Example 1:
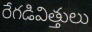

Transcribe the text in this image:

రేగడివిత్తులు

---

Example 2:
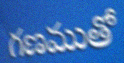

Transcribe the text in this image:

గణముతో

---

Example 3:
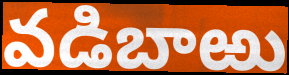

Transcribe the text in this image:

వడిబాఱు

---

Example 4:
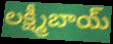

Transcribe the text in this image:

లక్ష్మీబాయ్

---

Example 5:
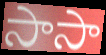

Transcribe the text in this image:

సాసా